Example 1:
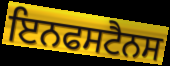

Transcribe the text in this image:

ਇਨਫਸਟੈਨਸ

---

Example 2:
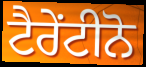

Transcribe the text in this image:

ਟੈਰੇਂਟੀਨੋ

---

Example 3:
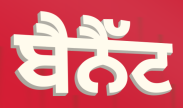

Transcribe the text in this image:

ਬੈਨੈੱਟ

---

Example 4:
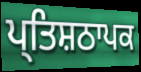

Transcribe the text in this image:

ਪ੍ਤਿਸ਼ਠਾਪਕ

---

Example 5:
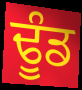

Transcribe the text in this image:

ਢੂੰਡ